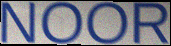
NOOR